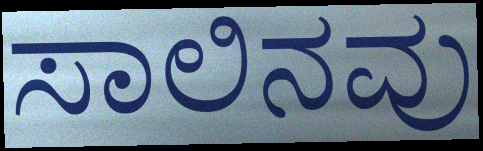
ಸಾಲಿನವು